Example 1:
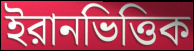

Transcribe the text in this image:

ইরানভিত্তিক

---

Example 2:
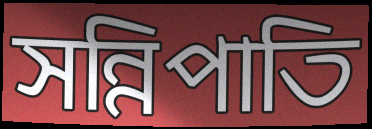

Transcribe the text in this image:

সন্নিপাতি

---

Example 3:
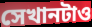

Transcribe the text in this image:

সেখানটাও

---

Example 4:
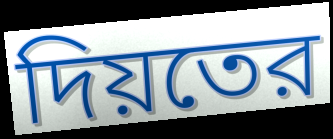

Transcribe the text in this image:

দিয়তের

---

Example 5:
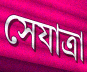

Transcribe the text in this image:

সেযাত্রা